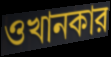
ওখানকার